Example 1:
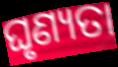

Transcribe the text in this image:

ଘୃଣ୍ୟତା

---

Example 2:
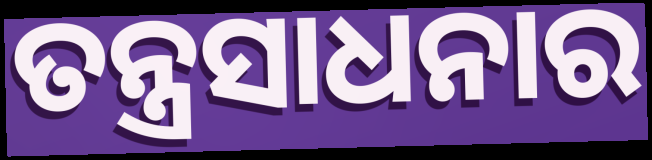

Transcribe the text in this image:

ତନ୍ତ୍ରସାଧନାର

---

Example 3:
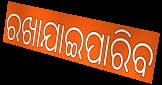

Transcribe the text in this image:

ରଖାଯାଇପାରିବ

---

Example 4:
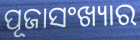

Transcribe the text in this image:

ପୂଜାସଂଖ୍ୟାର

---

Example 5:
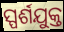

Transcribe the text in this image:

ସ୍ପର୍ଶଯୁକ୍ତ